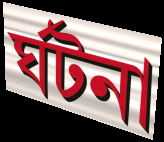
র্ঘটনা